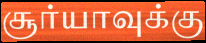
சூர்யாவுக்கு